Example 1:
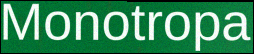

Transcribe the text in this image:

Monotropa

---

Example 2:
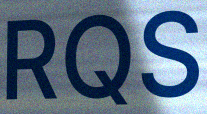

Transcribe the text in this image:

RQS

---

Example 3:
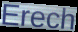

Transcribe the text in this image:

Erech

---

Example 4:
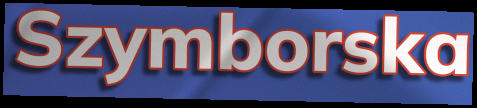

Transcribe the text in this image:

Szymborska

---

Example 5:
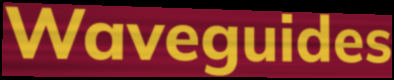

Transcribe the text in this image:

Waveguides